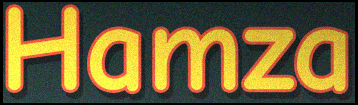
Hamza